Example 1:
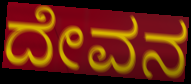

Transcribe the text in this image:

ದೇವನ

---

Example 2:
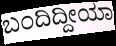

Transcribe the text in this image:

ಬಂದಿದ್ದೀಯಾ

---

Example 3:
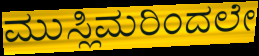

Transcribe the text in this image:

ಮುಸ್ಲಿಮರಿಂದಲೇ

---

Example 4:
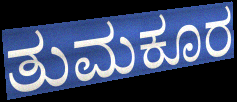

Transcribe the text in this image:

ತುಮಕೂರ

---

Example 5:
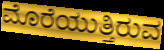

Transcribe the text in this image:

ಮೊರೆಯುತ್ತಿರುವ